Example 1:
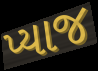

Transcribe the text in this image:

પ્યાજ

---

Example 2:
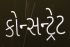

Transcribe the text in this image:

કોન્સન્ટ્રેટ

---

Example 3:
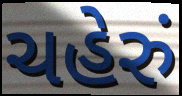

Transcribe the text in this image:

ચહેરું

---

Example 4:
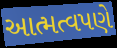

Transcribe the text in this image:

આત્મત્વપણે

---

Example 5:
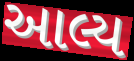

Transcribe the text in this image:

આલ્ય